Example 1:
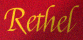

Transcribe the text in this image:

Rethel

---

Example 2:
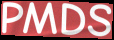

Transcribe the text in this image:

PMDS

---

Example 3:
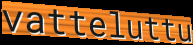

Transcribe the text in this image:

vatteluttu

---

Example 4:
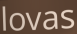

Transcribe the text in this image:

lovas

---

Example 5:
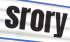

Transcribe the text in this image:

srory